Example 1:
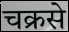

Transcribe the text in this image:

चक्रसे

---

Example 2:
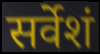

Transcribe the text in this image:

सर्वेशं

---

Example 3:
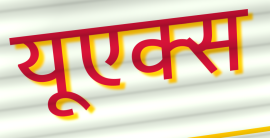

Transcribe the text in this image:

यूएक्स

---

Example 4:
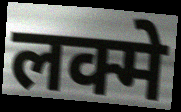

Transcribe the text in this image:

लक्मे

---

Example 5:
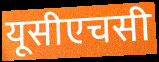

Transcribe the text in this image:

यूसीएचसी